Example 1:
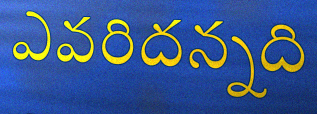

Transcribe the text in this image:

ఎవరిదన్నది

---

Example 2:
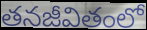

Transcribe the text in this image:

తనజీవితంలో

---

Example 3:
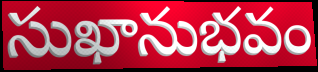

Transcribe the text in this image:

సుఖానుభవం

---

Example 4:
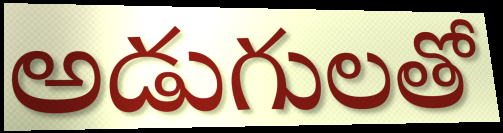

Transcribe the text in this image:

అడుగులతో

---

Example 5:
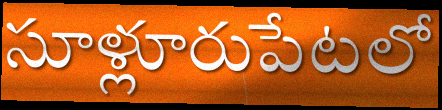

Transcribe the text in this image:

సూళ్లూరుపేటలో